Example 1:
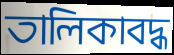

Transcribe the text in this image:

তালিকাবদ্ধ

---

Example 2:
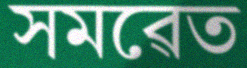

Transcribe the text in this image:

সমৱেত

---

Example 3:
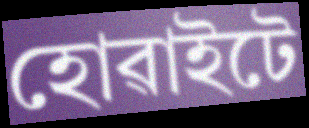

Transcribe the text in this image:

হোৱাইটে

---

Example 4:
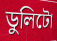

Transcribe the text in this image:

ডুলিটো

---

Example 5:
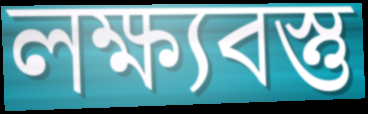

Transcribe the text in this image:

লক্ষ্যবস্তু